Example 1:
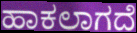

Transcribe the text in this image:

ಹಾಕಲಾಗದೆ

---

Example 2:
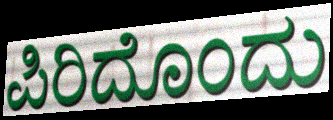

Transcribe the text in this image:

ಪಿರಿದೊಂದು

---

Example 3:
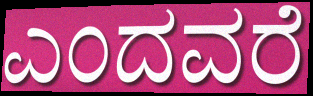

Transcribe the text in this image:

ಎಂದವರೆ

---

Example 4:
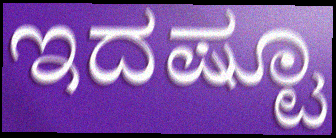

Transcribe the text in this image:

ಇದಷ್ಟೂ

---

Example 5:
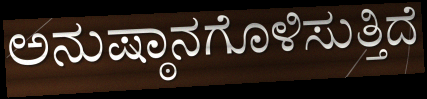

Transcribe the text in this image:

ಅನುಷ್ಠಾನಗೊಳಿಸುತ್ತಿದೆ